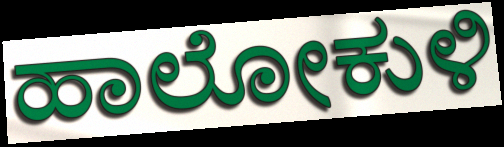
ಹಾಲೋಕುಳಿ